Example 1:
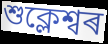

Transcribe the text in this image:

শুক্লেশ্বৰ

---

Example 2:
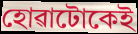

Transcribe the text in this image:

হোৱাটোকেই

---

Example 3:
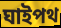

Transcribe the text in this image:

ঘাইপথ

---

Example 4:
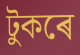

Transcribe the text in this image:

টুকৰে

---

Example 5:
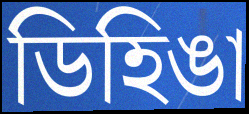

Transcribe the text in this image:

ডিহিঙা